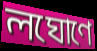
লঘোণে